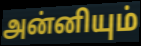
அன்னியும்